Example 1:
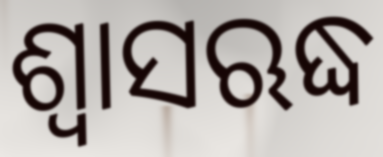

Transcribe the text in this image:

ଶ୍ୱାସଋଦ୍ଧ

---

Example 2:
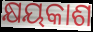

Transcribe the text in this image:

କ୍ଷୟକାଶ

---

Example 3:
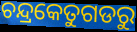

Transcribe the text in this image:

ଚନ୍ଦ୍ରକେତୁଗଡରୁ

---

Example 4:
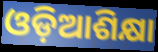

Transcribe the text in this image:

ଓଡ଼ିଆଶିକ୍ଷା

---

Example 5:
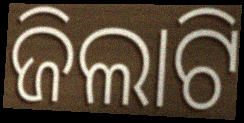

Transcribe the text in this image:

ଜିଲାଟି